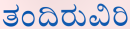
ತಂದಿರುವಿರಿ